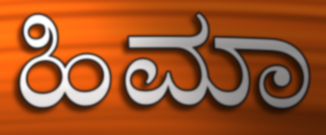
ಹಿಮಾ